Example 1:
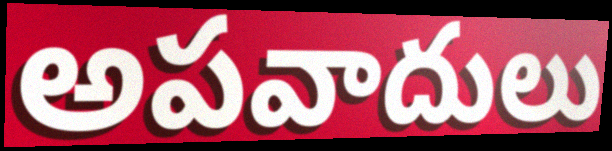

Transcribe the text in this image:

అపవాదులు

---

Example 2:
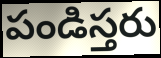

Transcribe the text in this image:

పండిస్తరు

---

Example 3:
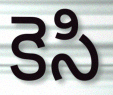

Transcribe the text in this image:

కెసి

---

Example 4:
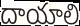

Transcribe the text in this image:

దాయాలి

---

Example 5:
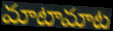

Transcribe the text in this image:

మాటామాట